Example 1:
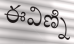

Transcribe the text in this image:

ఈవిణ్ని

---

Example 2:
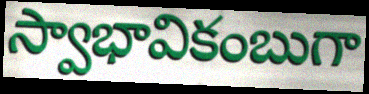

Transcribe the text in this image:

స్వాభావికంబుగా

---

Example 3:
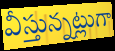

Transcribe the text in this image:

వీస్తున్నట్లుగా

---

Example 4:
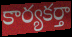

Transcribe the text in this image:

కార్యకర్తా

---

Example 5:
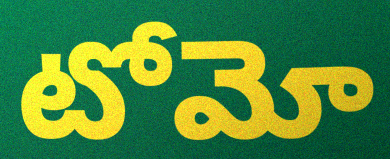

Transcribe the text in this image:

టోమో